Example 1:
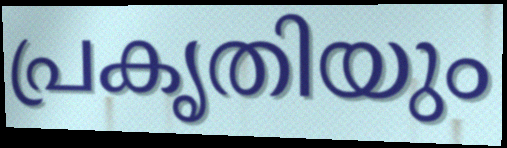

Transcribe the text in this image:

പ്രകൃതിയും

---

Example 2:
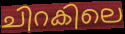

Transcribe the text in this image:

ചിറകിലെ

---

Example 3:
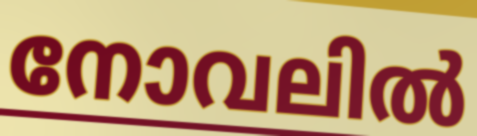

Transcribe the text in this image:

നോവലിൽ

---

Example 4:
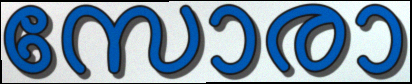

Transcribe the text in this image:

സോരാ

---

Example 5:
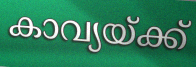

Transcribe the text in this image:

കാവ്യയ്ക്ക്